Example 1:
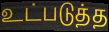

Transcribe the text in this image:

உட்படுத்த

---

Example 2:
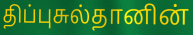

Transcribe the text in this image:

திப்புசுல்தானின்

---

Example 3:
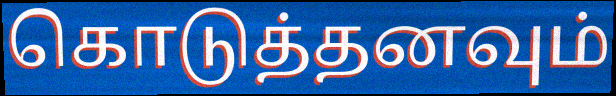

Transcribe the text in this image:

கொடுத்தனவும்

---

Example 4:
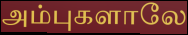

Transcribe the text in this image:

அம்புகளாலே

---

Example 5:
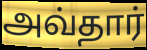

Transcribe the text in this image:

அவ்தார்